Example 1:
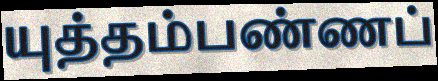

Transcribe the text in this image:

யுத்தம்பண்ணப்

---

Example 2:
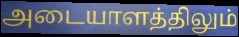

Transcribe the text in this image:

அடையாளத்திலும்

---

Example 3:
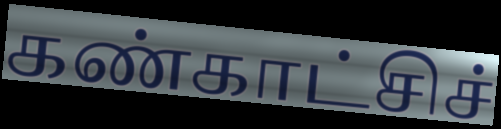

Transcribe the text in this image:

கண்காட்சிச்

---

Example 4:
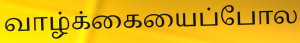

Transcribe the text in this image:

வாழ்க்கையைப்போல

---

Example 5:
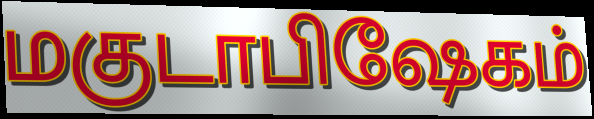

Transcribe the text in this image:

மகுடாபிஷேகம்